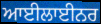
ਆਈਲਾਈਨਰ